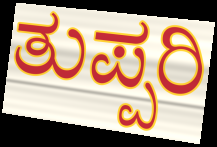
ತುಪ್ಪರಿ